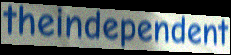
theindependent